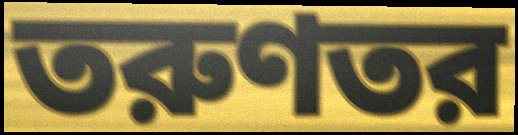
তরুণতর